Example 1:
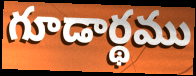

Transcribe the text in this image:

గూడార్థము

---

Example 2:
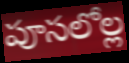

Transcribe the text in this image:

పూసలోల్ల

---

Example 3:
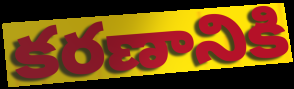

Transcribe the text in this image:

కరణానికి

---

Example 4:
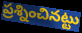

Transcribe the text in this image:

ప్రశ్నించినట్టు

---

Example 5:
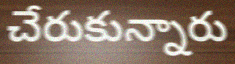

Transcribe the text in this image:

చేరుకున్నారు